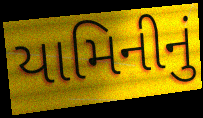
યામિનીનું